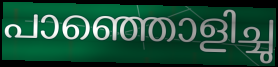
പാഞ്ഞൊളിച്ചു